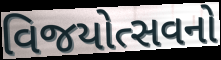
વિજયોત્સવનો